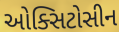
ઓક્સિટોસીન